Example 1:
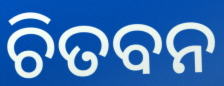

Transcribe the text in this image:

ଚିତବନ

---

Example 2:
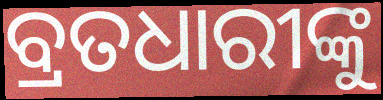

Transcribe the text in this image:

ବ୍ରତଧାରୀଙ୍କୁ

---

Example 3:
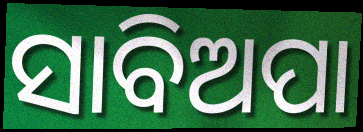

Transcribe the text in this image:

ସାବିଅପା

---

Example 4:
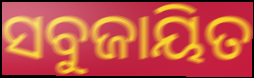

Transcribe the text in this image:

ସବୁଜାୟିତ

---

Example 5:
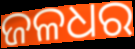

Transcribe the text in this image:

ଜଳଧର